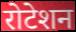
रोटेशन